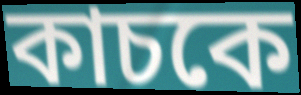
কাচকে